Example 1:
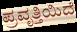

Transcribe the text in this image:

ಪ್ರವೃತ್ತಿಯಿದೆ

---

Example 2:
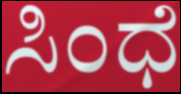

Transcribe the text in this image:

ಸಿಂಧೆ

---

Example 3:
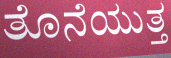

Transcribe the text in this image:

ತೊನೆಯುತ್ತ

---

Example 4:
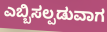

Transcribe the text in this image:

ಎಬ್ಬಿಸಲ್ಪಡುವಾಗ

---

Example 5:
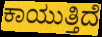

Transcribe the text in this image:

ಕಾಯುತ್ತಿದೆ